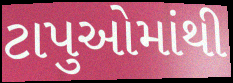
ટાપુઓમાંથી